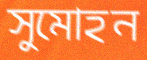
সুমোহন